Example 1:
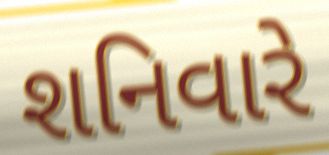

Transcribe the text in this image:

શનિવારે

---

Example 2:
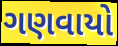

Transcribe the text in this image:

ગણવાયો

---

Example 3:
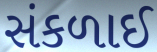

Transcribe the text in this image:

સંકળાઈ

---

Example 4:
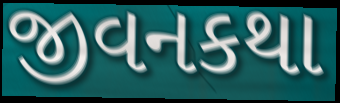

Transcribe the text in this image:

જીવનકથા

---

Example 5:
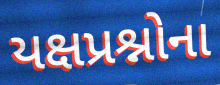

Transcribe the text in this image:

યક્ષપ્રશ્નોના